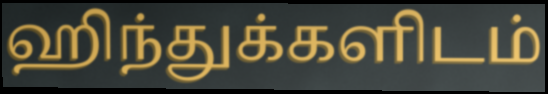
ஹிந்துக்களிடம்